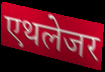
एथलेजर